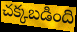
చక్కబడింది